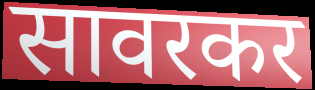
सावरकर